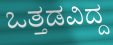
ಒತ್ತಡವಿದ್ದ